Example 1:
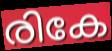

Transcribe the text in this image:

രികേ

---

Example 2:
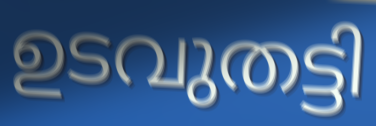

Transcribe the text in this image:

ഉടവുതട്ടി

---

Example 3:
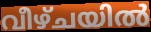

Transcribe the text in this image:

വീഴ്ചയിൽ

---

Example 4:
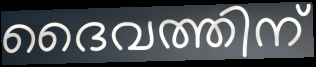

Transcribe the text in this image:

ദൈവത്തിന്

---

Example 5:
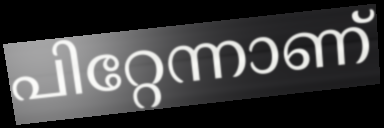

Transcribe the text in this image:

പിറ്റേന്നാണ്